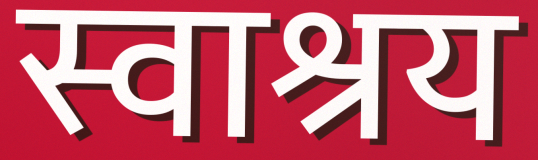
स्वाश्रय